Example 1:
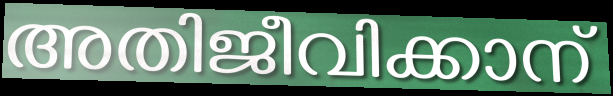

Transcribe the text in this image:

അതിജീവിക്കാന്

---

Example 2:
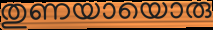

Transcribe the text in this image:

തുണയായൊരു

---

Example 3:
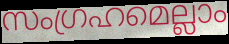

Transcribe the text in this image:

സംഗ്രഹമെല്ലാം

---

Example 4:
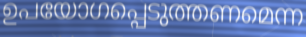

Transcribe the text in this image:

ഉപയോഗപ്പെടുത്തണമെന്ന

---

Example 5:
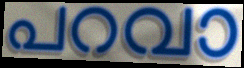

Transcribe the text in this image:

പറവാ